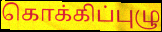
கொக்கிப்புழு